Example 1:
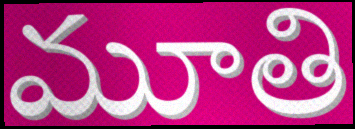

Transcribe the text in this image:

మూతి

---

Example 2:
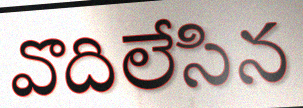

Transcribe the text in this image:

వొదిలేసిన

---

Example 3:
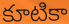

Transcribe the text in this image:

కూటికా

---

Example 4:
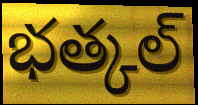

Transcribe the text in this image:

భత్కల్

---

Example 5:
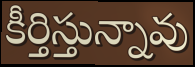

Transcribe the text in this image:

కీర్తిస్తున్నావు